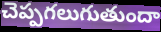
చెప్పగలుగుతుందా